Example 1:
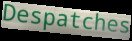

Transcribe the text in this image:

Despatches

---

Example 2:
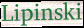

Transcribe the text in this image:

Lipinski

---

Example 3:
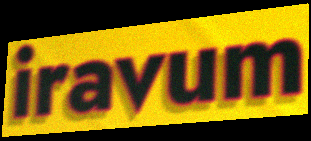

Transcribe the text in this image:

iravum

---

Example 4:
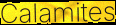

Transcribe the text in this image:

Calamites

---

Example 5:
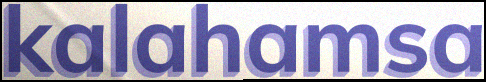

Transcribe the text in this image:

kalahamsa